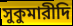
সুকুমারীদি